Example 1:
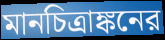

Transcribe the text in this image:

মানচিত্রাঙ্কনের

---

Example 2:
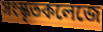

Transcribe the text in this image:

সংস্কৃতকলেজে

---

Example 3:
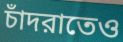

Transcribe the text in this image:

চাঁদরাতেও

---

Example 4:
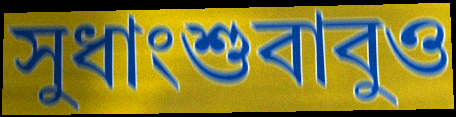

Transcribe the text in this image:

সুধাংশুবাবুও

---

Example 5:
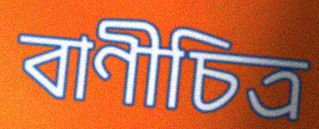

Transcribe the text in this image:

বাণীচিত্র